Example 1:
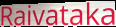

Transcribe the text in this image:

Raivataka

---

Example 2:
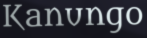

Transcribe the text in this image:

Kanungo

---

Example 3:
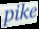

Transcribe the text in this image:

pike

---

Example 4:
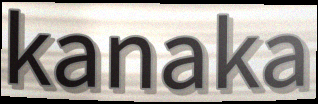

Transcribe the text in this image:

kanaka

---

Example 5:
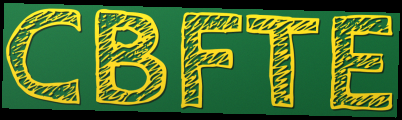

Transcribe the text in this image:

CBFTE